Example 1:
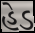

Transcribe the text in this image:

હેડ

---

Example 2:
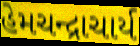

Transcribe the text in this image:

હેમચન્દ્રાચાર્ય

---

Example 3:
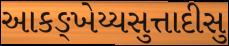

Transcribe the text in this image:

આકઙ્ખેય્યસુત્તાદીસુ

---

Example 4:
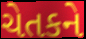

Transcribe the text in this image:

ચેતકને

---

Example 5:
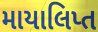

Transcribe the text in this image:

માયાલિપ્ત